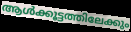
ആൾക്കൂട്ടത്തിലേക്കും